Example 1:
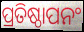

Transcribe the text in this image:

ପ୍ରତିଷ୍ଠାପନଂ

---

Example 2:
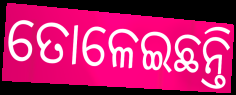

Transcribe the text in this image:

ତୋଳେଇଛନ୍ତି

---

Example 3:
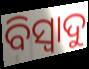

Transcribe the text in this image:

ବିସ୍ୱାଦୁ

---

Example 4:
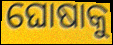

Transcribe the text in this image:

ଘୋଷାକୁ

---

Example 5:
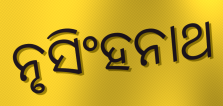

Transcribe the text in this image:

ନୃସିଂହନାଥ